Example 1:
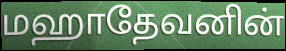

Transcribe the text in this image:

மஹாதேவனின்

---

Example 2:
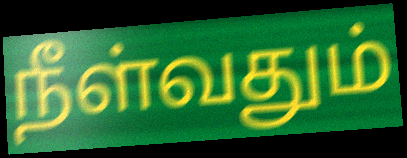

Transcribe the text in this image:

நீள்வதும்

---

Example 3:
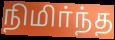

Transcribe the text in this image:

நிமிர்ந்த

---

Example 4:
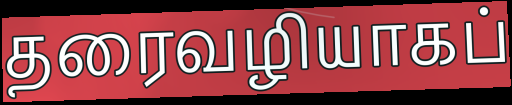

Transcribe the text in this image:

தரைவழியாகப்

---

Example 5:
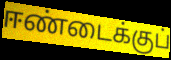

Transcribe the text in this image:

ஈண்டைக்குப்